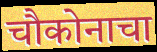
चौकोनाचा